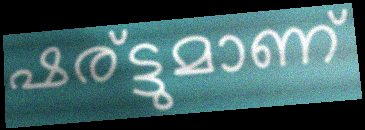
ഷര്ട്ടുമാണ്